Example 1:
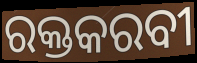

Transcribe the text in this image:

ରକ୍ତକରବୀ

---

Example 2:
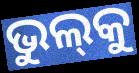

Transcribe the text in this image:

ଭୁଲ୍‍କୁ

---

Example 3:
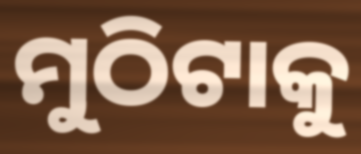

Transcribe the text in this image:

ମୁଠିଟାକୁ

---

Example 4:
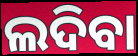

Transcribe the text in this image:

ଲଦିବା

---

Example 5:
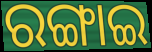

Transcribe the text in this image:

ରଙ୍ଗାଇ